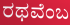
ರಥವೆಂಬ